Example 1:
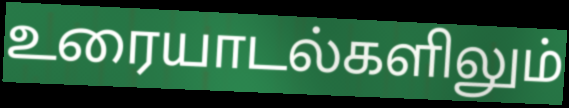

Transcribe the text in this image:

உரையாடல்களிலும்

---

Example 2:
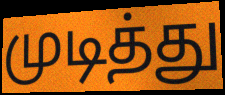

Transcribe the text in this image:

முடித்து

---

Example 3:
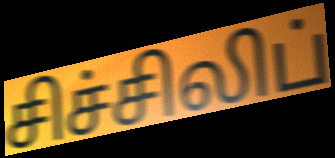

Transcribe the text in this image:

சிச்சிலிப்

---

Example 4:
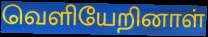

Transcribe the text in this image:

வெளியேறினாள்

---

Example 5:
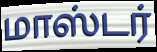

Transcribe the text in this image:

மாஸ்டர்